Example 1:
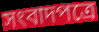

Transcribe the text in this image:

সংবাদপত্রে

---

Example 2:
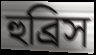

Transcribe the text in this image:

হুব্রিস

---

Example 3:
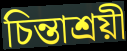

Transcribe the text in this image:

চিন্তাশ্রয়ী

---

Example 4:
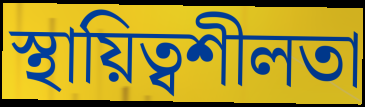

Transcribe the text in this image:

স্থায়িত্বশীলতা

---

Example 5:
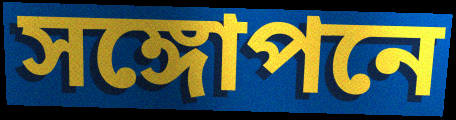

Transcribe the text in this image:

সঙ্গোপনে